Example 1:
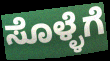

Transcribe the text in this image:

ಸೊಳ್ಳೆಗೆ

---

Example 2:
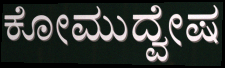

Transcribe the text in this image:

ಕೋಮುದ್ವೇಷ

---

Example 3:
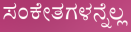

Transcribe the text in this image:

ಸಂಕೇತಗಳನ್ನೆಲ್ಲ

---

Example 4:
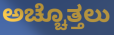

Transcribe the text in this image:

ಅಚ್ಚೊತ್ತಲು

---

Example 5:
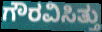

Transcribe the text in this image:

ಗೌರವಿಸಿತ್ತು